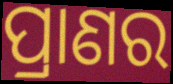
ପ୍ରାଣର